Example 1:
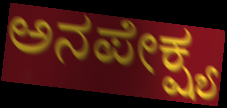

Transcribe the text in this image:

ಅನಪೇಕ್ಷ್ಯ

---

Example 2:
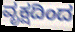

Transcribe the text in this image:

ವೃಕ್ಷದಿಂದ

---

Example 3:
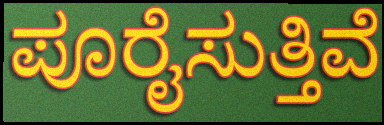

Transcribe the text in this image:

ಪೂರೈಸುತ್ತಿವೆ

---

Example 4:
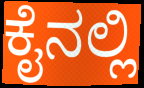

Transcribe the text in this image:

ಕೈನಲ್ಲಿ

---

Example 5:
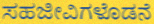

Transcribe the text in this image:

ಸಹಜೀವಿಗಳೊಡನೆ